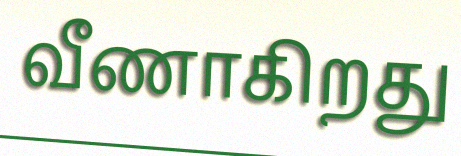
வீணாகிறது